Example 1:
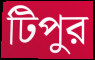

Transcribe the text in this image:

টিপুর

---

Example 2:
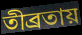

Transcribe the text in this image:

তীব্রতায়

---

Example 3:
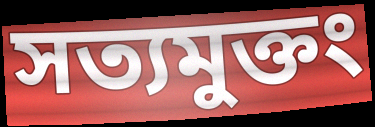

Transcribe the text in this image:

সত্যমুক্তং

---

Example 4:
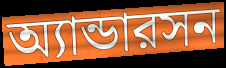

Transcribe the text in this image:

অ্যান্ডারসন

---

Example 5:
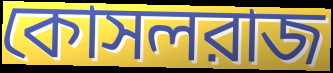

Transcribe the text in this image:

কোসলরাজ